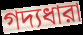
গদ্যধারা